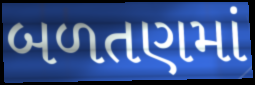
બળતણમાં